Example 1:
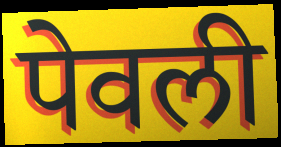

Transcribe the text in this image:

पेवली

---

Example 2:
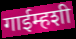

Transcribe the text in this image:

गाईम्हशी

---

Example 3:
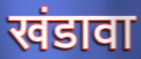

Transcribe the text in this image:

खंडावा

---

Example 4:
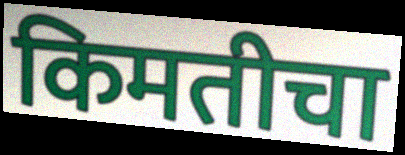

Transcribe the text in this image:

किमतीचा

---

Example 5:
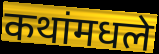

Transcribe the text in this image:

कथांमधले